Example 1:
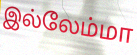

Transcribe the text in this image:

இல்லேம்மா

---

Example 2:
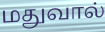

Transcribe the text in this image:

மதுவால்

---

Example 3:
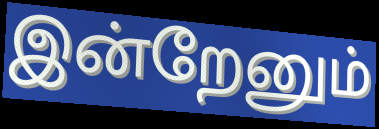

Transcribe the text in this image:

இன்றேனும்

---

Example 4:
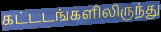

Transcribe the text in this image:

கட்டடங்களிலிருந்து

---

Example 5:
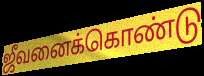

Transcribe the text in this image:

ஜீவனைக்கொண்டு